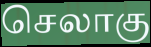
செலாகு